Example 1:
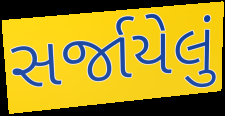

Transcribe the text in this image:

સર્જાયેલું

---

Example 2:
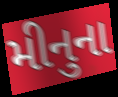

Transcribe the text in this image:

મીનુના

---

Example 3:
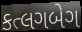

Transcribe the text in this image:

કત્લગબેગ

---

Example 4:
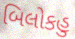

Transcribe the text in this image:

બિલોકહુ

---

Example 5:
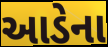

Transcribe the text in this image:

આડેના